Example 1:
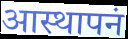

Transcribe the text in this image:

आस्थापनं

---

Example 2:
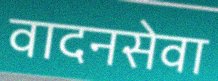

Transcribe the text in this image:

वादनसेवा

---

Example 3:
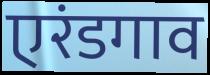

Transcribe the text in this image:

एरंडगाव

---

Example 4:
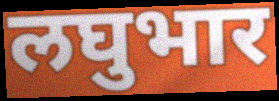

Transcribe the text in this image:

लघुभार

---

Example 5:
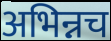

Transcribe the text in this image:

अभिन्नच